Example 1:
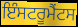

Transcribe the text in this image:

ਇੰਸਟਰੂਮੈਂਟਸ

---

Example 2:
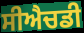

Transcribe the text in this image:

ਸੀਐਚਡੀ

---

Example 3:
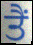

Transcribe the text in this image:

ਤੈਂ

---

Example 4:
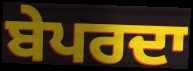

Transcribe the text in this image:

ਬੇਪਰਦਾ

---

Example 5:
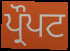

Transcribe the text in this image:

ਪ੍ਰੌਪਟ